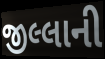
જીલ્લાની